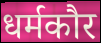
धर्मकौर